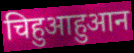
चिहुआहुआन